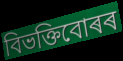
বিভক্তিবোৰৰ